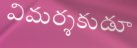
విమర్శకుడూ